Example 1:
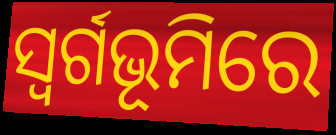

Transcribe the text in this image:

ସ୍ଵର୍ଗଭୂମିରେ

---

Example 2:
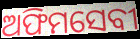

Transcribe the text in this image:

ଅଫିମସେବୀ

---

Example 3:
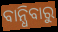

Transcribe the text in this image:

ବାନ୍ଧିବାରୁ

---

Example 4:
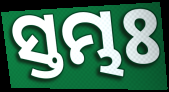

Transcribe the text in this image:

ସ୍ତମ୍ଭଃ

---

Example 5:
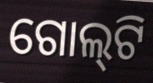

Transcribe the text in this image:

ଗୋଲ୍‍ଟି